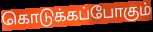
கொடுக்கப்போகும்